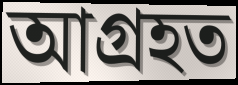
আগ্ৰহত